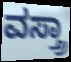
ವಸ್ತ್ರಾ